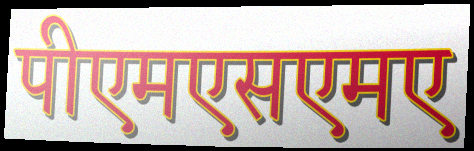
पीएमएसएमए